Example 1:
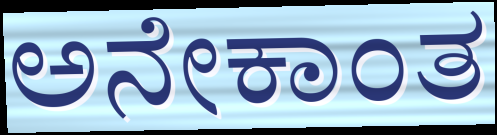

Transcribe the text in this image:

ಅನೇಕಾಂತ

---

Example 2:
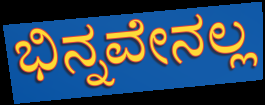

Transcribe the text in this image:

ಭಿನ್ನವೇನಲ್ಲ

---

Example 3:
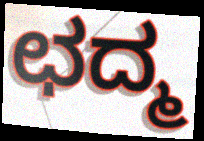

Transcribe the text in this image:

ಛದ್ಮ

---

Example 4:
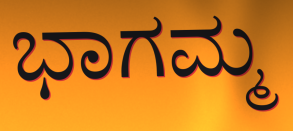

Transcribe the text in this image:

ಭಾಗಮ್ಮ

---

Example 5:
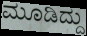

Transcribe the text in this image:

ಮೂಡಿದ್ದು